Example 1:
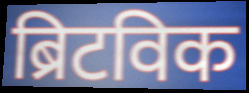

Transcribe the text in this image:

ब्रिटविक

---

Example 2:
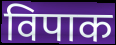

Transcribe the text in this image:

विपाक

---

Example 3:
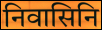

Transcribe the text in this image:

निवासिनि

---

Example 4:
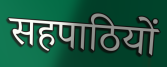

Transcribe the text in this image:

सहपाठियों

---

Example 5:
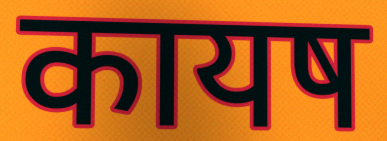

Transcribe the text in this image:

कायष